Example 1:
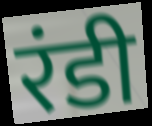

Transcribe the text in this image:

रंडी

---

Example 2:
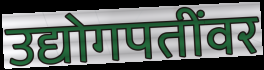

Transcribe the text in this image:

उद्योगपतींवर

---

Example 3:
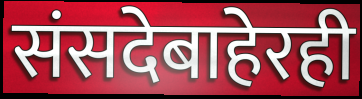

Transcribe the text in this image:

संसदेबाहेरही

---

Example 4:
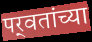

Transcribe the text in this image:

पर्वतांच्या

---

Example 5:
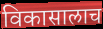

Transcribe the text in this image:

विकासालाच